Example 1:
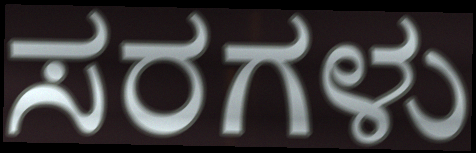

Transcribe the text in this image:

ಸರಗಳು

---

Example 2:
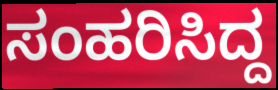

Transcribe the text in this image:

ಸಂಹರಿಸಿದ್ದ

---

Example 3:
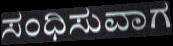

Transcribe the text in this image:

ಸಂಧಿಸುವಾಗ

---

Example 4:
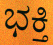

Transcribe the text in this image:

ಭಕ್ತಿ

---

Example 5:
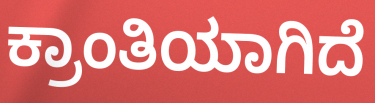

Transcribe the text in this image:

ಕ್ರಾಂತಿಯಾಗಿದೆ